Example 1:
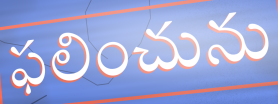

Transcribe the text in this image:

ఫలించును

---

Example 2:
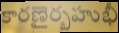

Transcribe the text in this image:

కారణైర్బహుభీ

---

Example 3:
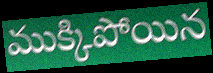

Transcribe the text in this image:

ముక్కిపోయిన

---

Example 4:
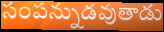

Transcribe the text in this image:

సంపన్నుడవుతాడు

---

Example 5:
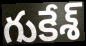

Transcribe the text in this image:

గుకేశ్